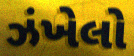
ઝંખેલો